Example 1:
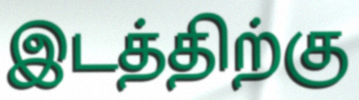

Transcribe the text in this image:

இடத்திற்கு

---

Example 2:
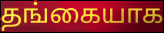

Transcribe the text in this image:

தங்கையாக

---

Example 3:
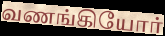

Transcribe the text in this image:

வணங்கியோர்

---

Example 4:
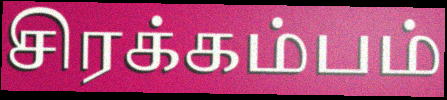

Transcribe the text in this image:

சிரக்கம்பம்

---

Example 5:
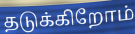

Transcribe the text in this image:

தடுக்கிறோம்